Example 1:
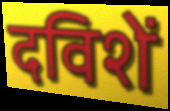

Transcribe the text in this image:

दविशें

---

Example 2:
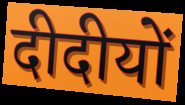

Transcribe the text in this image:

दीदीयों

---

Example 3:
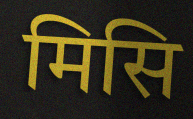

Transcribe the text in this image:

मिसि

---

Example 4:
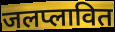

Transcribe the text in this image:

जलप्लावित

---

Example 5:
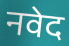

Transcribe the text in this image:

नवेद